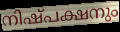
നിഷ്പക്ഷനും